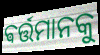
ଵର୍ତ୍ତମାନକୁ